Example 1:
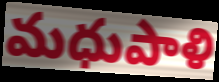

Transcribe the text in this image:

మధుపాళి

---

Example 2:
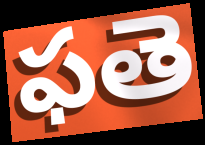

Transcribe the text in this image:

ఫతె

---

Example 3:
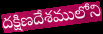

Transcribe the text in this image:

దక్షిణదేశములోని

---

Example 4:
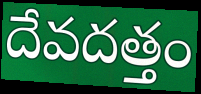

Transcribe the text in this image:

దేవదత్తం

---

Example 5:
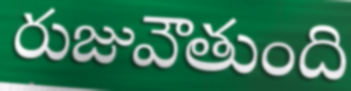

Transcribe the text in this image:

రుజువౌతుంది